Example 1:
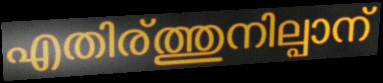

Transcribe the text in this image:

എതിര്ത്തുനില്പാന്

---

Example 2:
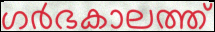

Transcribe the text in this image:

ഗർഭകാലത്ത്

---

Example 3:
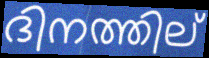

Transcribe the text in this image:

ദിനത്തില്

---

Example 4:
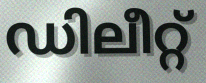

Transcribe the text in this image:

ഡിലീറ്റ്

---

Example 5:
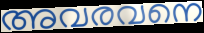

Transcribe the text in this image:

അവരവനെ